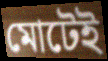
মোটেই